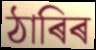
ঠাৰিৰ